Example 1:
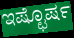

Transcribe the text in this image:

ಇಷ್ಟೊರ್ಷ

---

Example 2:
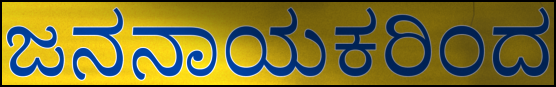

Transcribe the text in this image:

ಜನನಾಯಕರಿಂದ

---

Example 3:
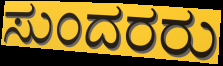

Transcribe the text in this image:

ಸುಂದರರು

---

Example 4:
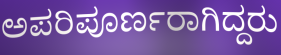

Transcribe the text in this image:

ಅಪರಿಪೂರ್ಣರಾಗಿದ್ದರು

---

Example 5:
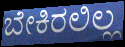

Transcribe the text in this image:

ಬೇಕಿರಲಿಲ್ಲ